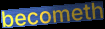
becometh